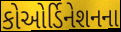
કોઓર્ડિનેશનના